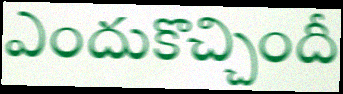
ఎందుకొచ్చిందీ